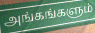
அங்கங்களும்